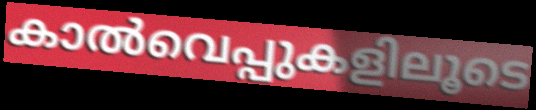
കാൽവെപ്പുകളിലൂടെ